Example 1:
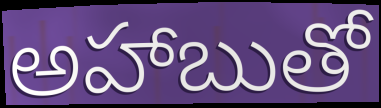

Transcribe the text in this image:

అహాబుతో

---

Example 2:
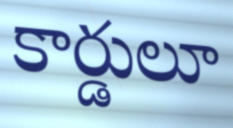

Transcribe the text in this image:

కార్డులూ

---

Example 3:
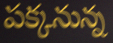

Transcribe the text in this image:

పక్కనున్న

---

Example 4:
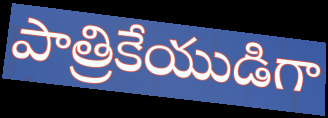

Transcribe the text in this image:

పాత్రికేయుడిగా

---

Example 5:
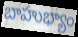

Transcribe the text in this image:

బాహుభ్యాం